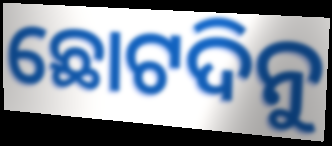
ଛୋଟଦିନୁ